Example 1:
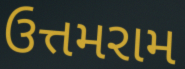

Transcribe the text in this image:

ઉત્તમરામ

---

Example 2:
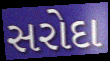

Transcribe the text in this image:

સરોદા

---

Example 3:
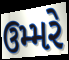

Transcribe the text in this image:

ઉમ્મરે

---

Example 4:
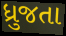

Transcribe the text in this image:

ધ્રુજતા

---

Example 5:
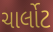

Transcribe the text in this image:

ચાર્લોટ